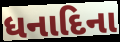
ધનાદિના